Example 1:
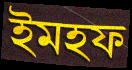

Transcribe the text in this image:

ইমহফ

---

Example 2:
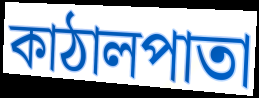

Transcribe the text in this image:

কাঠালপাতা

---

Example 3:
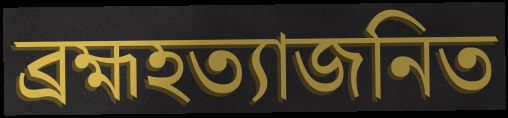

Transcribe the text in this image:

ব্রহ্মহত্যাজনিত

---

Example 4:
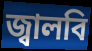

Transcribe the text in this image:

জ্বালবি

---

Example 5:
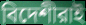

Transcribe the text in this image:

বিদেশীরাই